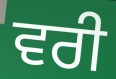
ਵਰੀ